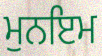
ਮੁਨਇਮ